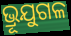
ଭ୍ରୂଯୁଗଳ